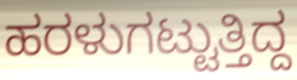
ಹರಳುಗಟ್ಟುತ್ತಿದ್ದ